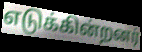
எடுக்கின்றனர்